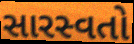
સારસ્વતો